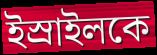
ইস্রাইলকে